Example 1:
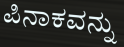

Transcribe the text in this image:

ಪಿನಾಕವನ್ನು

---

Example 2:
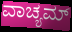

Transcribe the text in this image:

ವಾಚ್ಯಮ್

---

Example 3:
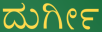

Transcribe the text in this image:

ದುರ್ಗೀ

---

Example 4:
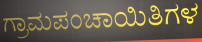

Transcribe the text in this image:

ಗ್ರಾಮಪಂಚಾಯಿತಿಗಳ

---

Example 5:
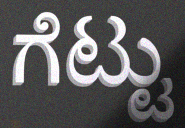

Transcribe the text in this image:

ಗೆಟ್ಟು